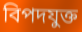
বিপদযুক্ত